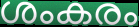
ശംകരം